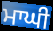
ਮਾਘੀ